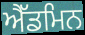
ਐੱਡਮਿਨ